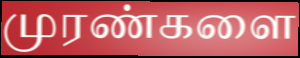
முரண்களை